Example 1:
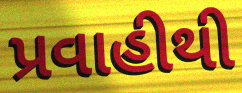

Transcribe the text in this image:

પ્રવાહીથી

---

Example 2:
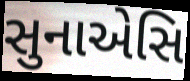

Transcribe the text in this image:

સુનાએસિ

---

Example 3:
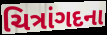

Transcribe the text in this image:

ચિત્રાંગદના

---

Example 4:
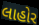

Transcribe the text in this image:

લાહોર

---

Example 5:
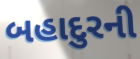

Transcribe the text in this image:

બહાદુરની